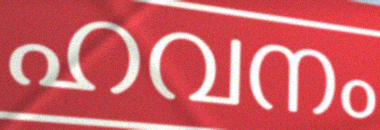
ഹവനം